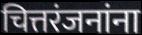
चित्तरंजनांना